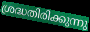
ശ്രദ്ധതിരിക്കുന്നു